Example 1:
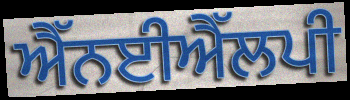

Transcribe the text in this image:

ਐੱਨਈਐੱਲਪੀ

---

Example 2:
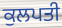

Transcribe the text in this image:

ਕੁਲਪਤੀ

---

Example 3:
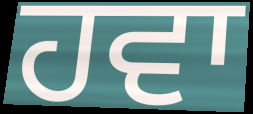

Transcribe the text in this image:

ਹਵਾ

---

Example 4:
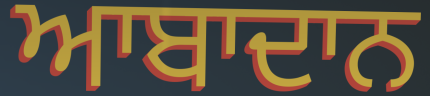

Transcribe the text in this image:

ਆਬਾਦਾਨ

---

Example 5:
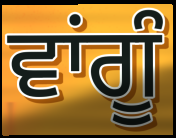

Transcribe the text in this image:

ਵਾਂਗੂੰ